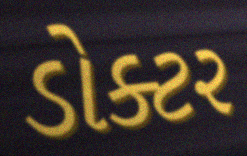
ડોક્ટર